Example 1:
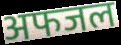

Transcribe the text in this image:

अफजल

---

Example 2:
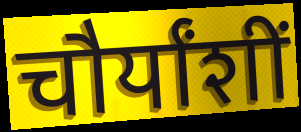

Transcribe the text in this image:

चौर्यांशीं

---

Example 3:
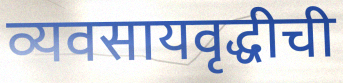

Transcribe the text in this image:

व्यवसायवृद्धीची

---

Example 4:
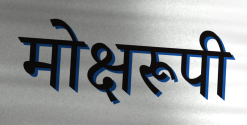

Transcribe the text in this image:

मोक्षरूपी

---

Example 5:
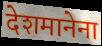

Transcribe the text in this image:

देशमानेना